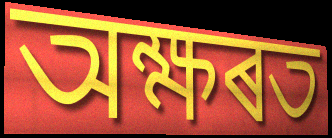
অক্ষৰত